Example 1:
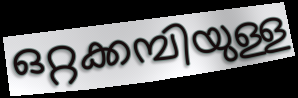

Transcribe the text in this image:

ഒറ്റക്കമ്പിയുള്ള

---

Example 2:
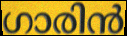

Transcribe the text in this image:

ഗാരിൻ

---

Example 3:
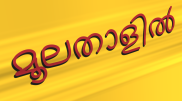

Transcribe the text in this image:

മൂലതാളിൽ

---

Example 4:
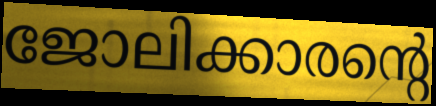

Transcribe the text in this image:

ജോലിക്കാരന്റെ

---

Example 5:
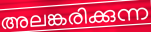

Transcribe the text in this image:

അലങ്കരിക്കുന്ന